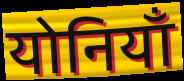
योनियाँ